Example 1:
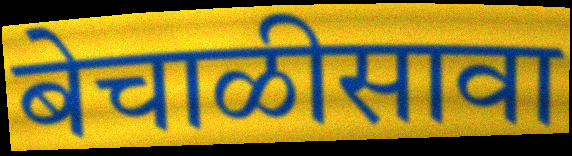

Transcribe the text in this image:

बेचाळीसावा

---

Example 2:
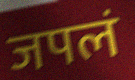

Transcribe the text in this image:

जपलं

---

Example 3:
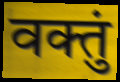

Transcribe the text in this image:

वक्तुं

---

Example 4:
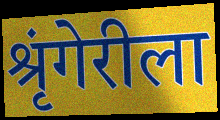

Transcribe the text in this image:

श्रृंगेरीला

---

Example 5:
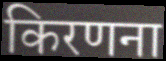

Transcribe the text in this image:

किरणना